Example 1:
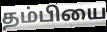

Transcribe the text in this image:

தம்பியை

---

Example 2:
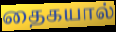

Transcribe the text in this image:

தைகயால்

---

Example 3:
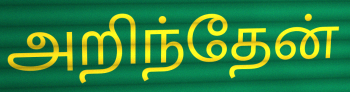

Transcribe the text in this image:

அறிந்தேன்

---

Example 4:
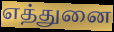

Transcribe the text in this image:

எத்துனை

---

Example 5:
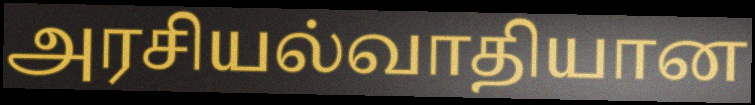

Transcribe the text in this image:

அரசியல்வாதியான